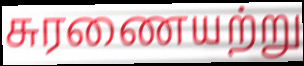
சுரணையற்று